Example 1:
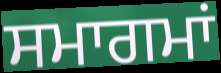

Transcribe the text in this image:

ਸਮਾਗਮਾਂ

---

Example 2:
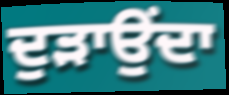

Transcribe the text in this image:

ਦੁੜਾਉਂਦਾ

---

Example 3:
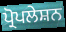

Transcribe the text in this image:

ਪ੍ਰੋਪਲੇਸ਼ਨ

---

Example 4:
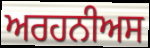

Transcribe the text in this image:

ਅਰਹਨੀਅਸ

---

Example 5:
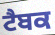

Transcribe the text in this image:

ਟੈਬਕ